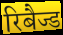
रिबैज्ड